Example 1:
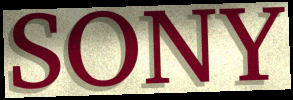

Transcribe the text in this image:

SONY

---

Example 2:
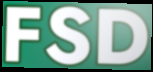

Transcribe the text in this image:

FSD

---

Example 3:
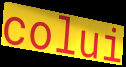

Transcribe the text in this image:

colui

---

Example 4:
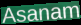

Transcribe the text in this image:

Asanam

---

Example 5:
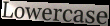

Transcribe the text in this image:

Lowercase